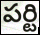
పర్టి